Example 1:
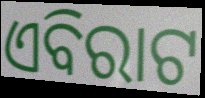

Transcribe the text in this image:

ଏବିରାଟ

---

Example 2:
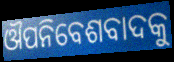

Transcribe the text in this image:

ଔପନିବେଶବାଦକୁ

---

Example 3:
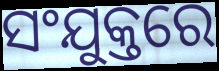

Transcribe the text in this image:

ସଂଯୁକ୍ତରେ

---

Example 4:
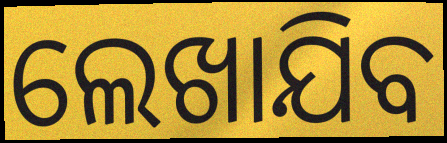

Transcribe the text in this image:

ଲେଖାଯିବ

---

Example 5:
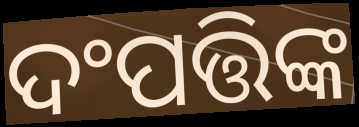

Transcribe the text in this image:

ଦଂପତ୍ତିଙ୍କ